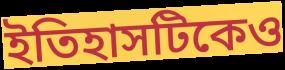
ইতিহাসটিকেও